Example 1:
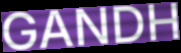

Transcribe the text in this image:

GANDH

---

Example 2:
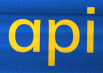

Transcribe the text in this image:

api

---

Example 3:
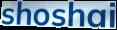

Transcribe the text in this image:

shoshai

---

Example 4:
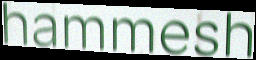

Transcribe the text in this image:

hammesh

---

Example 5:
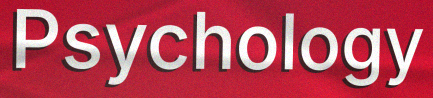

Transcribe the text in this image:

Psychology